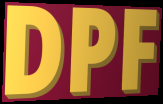
DPF